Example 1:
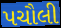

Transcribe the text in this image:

પચૌલી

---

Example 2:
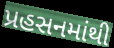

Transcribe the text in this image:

પ્રહસનમાંથી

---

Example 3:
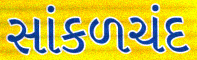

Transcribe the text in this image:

સાંકળચંદ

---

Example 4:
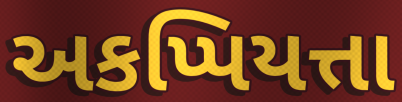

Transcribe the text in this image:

અકપ્પિયત્તા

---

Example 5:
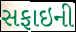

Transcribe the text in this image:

સફાઇની